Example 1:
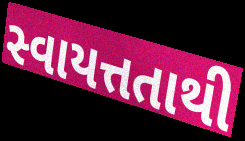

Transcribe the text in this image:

સ્વાયત્તતાથી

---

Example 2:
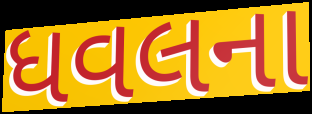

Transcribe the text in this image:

ધવલના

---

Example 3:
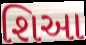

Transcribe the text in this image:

શિઆ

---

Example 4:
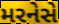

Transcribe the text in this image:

મરનેસે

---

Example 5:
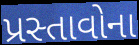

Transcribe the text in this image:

પ્રસ્તાવોના